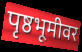
पृष्ठभूमीवर